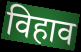
विहाव